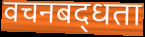
वचनबद्धता